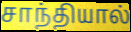
சாந்தியால்